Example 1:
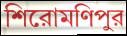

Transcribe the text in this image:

শিরোমণিপুর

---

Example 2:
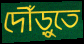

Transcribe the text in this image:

দৌঁড়ুতে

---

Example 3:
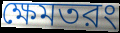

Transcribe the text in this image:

ক্ষেমতরং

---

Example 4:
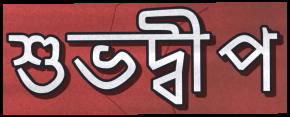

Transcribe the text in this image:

শুভদ্বীপ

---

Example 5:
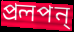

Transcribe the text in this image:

প্রলপন্